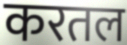
करतल